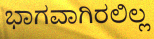
ಭಾಗವಾಗಿರಲಿಲ್ಲ